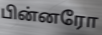
பின்னரோ